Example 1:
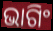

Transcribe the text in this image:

ଭାଗିଂ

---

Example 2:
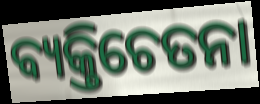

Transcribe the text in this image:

ବ୍ୟକ୍ତିଚେତନା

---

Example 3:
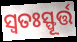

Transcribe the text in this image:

ସ୍ୱତଃସ୍ଫୂର୍ତ୍ତ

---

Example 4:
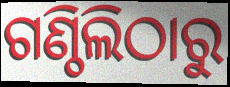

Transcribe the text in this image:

ଗଣ୍ଠିଲିଠାରୁ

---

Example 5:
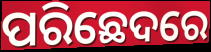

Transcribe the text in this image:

ପରିଛେଦରେ